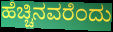
ಹೆಚ್ಚಿನವರೆಂದು